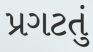
પ્રગટતું